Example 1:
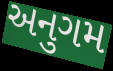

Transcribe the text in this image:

અનુગમ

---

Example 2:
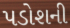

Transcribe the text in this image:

પડોશની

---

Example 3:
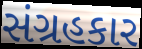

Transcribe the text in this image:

સંગ્રહકાર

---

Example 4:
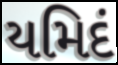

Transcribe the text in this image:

યમિદં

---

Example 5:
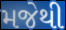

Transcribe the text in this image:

મજેથી